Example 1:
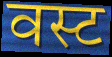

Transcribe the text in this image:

वस्ट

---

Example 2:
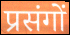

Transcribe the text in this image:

प्रसंगों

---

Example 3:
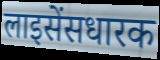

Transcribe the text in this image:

लाइसेंसधारक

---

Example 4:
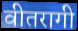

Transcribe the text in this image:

वीतरागी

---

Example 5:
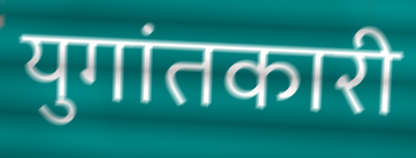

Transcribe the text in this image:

युगांतकारी